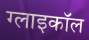
ग्लाइकॉल